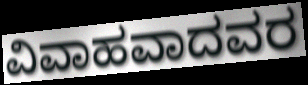
ವಿವಾಹವಾದವರ